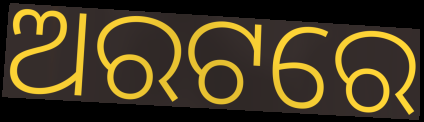
ଅରଟରେ